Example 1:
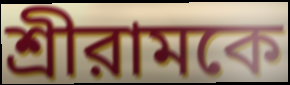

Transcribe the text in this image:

শ্রীরামকে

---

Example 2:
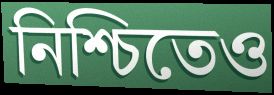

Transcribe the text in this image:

নিশ্চিতেও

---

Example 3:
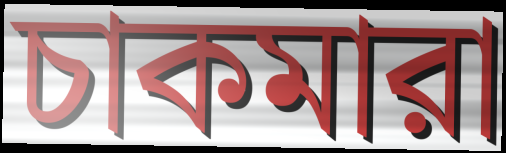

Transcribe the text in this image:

চাকমারা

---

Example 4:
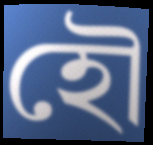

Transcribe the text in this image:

হৌ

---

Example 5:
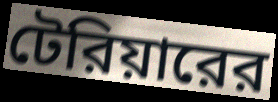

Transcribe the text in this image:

টেরিয়ারের